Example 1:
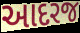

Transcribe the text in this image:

આદરજ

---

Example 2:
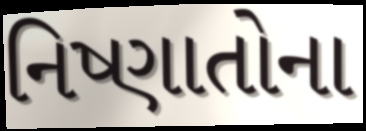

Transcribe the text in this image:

નિષ્ણાતોના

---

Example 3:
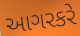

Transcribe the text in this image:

આગરકરે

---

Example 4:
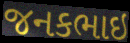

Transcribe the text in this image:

જનકભાઇ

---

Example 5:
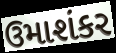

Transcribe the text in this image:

ઉમાશંકર